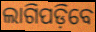
ଲାଗିପଡ଼ିବେ